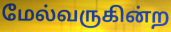
மேல்வருகின்ற